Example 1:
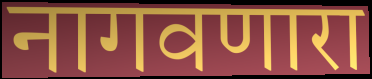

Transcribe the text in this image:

नागवणारा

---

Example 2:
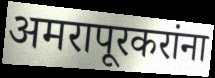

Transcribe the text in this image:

अमरापूरकरांना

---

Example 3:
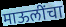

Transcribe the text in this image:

माऊलींचा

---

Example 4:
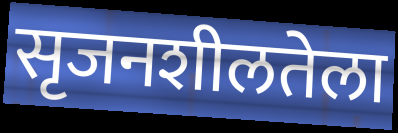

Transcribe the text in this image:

सृजनशीलतेला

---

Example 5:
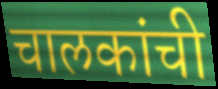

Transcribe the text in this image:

चालकांची